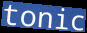
tonic